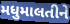
મધુમાલતીને